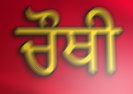
ਚੌਥੀ